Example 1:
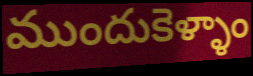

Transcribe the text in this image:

ముందుకెళ్ళాం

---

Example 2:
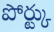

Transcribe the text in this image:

పోర్ట్కు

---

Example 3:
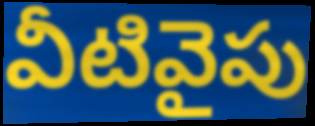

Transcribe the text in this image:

వీటివైపు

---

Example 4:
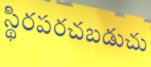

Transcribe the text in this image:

స్థిరపరచబడుచు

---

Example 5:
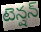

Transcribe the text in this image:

టెన్షన్